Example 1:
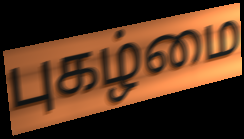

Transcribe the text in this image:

புகழ்மை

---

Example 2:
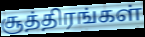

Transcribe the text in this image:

சூத்திரங்கள்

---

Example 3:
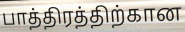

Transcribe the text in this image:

பாத்திரத்திற்கான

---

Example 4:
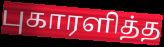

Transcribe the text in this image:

புகாரளித்த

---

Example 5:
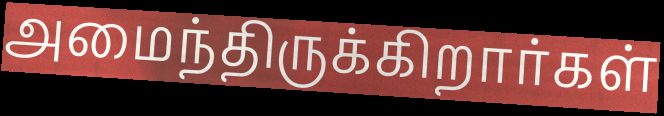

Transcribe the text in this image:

அமைந்திருக்கிறார்கள்